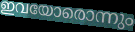
ഇവയോരൊന്നും